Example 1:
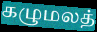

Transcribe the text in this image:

கழுமலத்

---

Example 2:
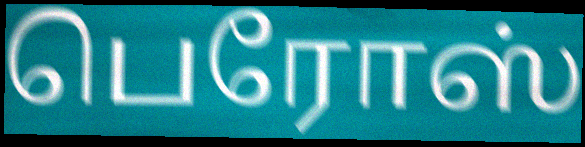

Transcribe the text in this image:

பெரோஸ்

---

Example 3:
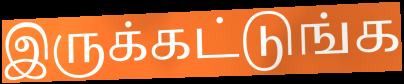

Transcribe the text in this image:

இருக்கட்டுங்க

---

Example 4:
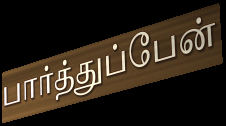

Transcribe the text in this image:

பார்த்துப்பேன்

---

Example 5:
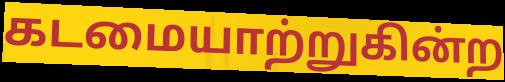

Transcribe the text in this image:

கடமையாற்றுகின்ற